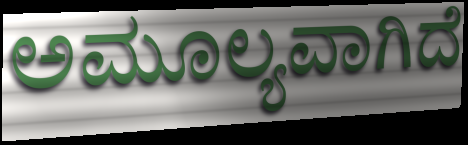
ಅಮೂಲ್ಯವಾಗಿದೆ